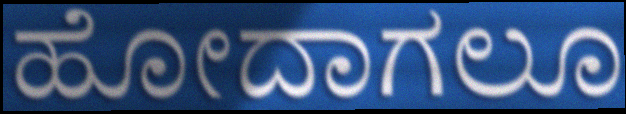
ಹೋದಾಗಲೂ